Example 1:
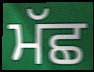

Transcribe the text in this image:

ਮੱਛ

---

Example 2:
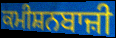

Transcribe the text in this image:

ਕਮੀਸ਼ਨਬਾਜ਼ੀ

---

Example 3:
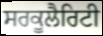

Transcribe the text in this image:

ਸਰਕੂਲੈਰਿਟੀ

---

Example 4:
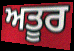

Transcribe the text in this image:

ਅਤੂਰ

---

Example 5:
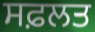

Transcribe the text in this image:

ਸਫ਼ਲਤ